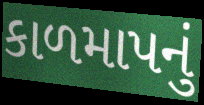
કાળમાપનું